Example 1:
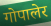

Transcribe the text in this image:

गोपालेर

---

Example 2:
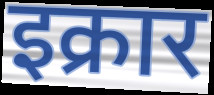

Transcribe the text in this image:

इक्रार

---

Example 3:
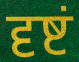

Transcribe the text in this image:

दृष्टं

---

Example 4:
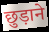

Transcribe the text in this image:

छुड़ाने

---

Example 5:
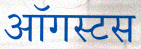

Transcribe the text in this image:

ऑगस्टस